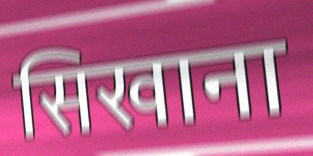
सिखाना